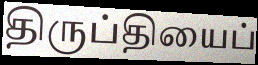
திருப்தியைப்